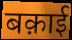
बक़ाई